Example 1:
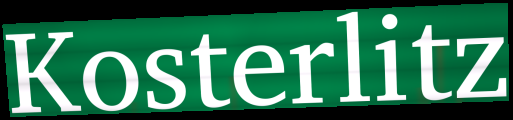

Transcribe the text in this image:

Kosterlitz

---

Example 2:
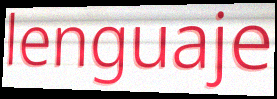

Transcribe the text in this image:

lenguaje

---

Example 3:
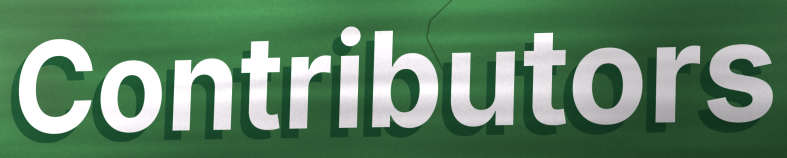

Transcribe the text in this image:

Contributors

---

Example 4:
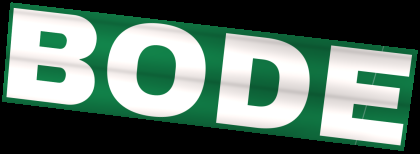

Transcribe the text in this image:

BODE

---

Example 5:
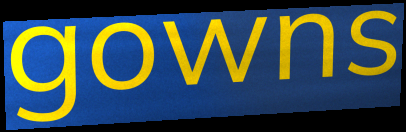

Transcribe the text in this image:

gowns